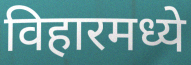
विहारमध्ये